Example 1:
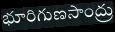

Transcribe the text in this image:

భూరిగుణసాంద్రు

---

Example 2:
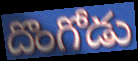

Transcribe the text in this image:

దొంగోడు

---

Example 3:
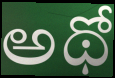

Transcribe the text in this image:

అథో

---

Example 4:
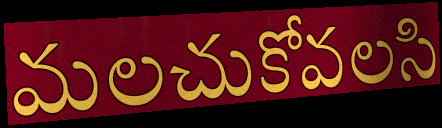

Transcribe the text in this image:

మలచుకోవలసి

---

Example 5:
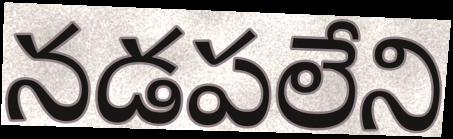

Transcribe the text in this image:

నడపలేని